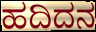
ಹದಿದನ